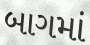
બાગમાં